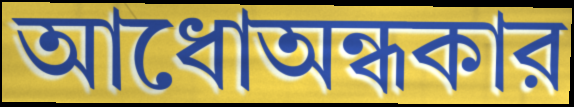
আধোঅন্ধকার